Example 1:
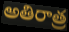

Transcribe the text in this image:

అతిరాత్ర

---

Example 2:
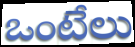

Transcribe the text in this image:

ఒంటేలు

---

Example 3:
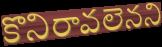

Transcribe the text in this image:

కొనిరావలెనని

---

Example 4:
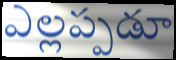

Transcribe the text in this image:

ఎల్లప్పడూ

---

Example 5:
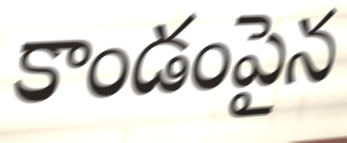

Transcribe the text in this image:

కాండంపైన